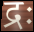
द्रः